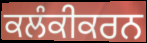
ਕਲੰਕੀਕਰਨ